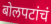
बोलपटांचं